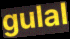
gulal